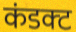
कंडक्‍ट